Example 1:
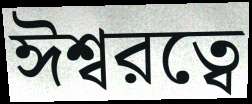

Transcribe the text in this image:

ঈশ্বরত্বে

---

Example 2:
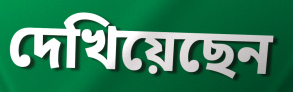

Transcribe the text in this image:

দেখিয়েছেন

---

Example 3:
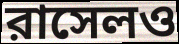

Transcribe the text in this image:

রাসেলও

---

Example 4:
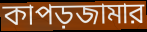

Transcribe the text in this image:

কাপড়জামার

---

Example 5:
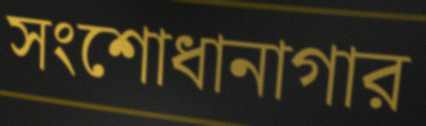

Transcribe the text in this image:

সংশোধানাগার